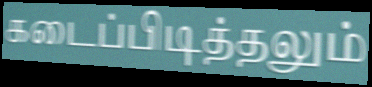
கடைப்பிடித்தலும்